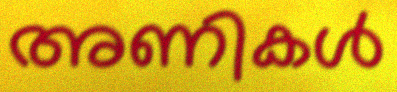
അണികൾ